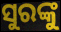
ସୁରଙ୍କୁ